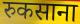
रुकसाना